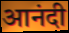
आनंदी